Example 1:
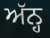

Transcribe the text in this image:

ਅੱਨ੍ਹ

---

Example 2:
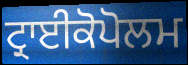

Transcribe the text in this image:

ਟ੍ਰਾਈਕੋਪੋਲਮ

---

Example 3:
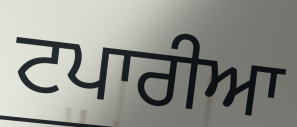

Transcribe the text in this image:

ਟਪਾਰੀਆ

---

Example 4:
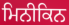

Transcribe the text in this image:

ਮਿਨੀਕਿਨ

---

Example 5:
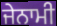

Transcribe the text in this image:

ਜੇਨਾਮੀ